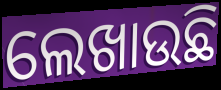
ଲେଖାଉଛି